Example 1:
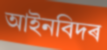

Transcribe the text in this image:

আইনবিদৰ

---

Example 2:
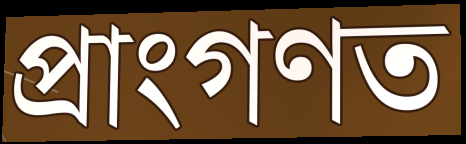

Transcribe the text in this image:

প্ৰাংগণত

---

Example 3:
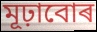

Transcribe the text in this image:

মূঢ়াবোৰ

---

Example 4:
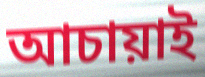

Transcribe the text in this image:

আচায়াই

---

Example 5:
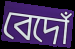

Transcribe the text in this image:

বেদোঁ